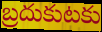
బ్రదుకుటకు